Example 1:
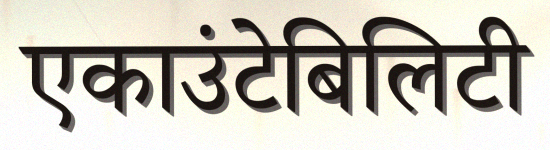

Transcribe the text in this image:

एकाउंटेबिलिटी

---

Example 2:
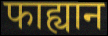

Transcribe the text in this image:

फाह्यान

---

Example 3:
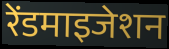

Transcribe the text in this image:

रेंडमाइजेशन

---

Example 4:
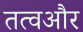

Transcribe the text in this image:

तत्वऔर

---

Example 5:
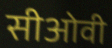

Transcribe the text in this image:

सीओवी